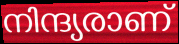
നിന്ദ്യരാണ്